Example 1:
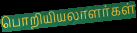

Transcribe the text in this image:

பொறியியலாளர்கள்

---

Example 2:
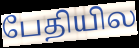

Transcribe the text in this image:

பேதியில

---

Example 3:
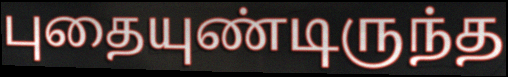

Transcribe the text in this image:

புதையுண்டிருந்த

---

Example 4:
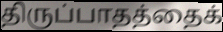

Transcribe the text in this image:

திருப்பாதத்தைக்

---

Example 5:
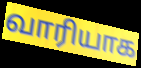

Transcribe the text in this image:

வாரியாக